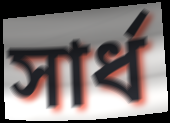
সার্ধ